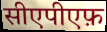
सीएपीएफ़